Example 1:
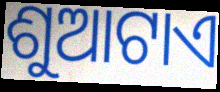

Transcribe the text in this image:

ଶୁଆଟାଏ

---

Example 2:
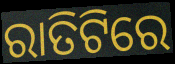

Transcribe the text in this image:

ରାତିଟିରେ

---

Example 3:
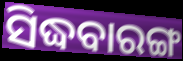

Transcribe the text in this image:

ସିଦ୍ଧବାରଙ୍ଗ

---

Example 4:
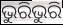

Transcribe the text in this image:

ଭୁରିଭୁରି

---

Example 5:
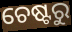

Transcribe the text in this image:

ଚେଷ୍ଟରୁ